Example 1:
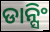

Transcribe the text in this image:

ଡାନ୍ସିଂ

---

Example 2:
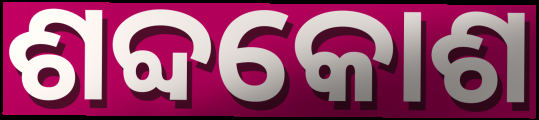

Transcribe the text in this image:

ଶବ୍ଦକୋଶ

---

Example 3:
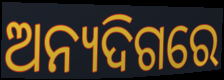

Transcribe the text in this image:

ଅନ୍ୟଦିଗରେ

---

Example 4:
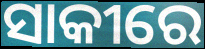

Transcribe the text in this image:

ସାକୀରେ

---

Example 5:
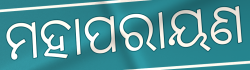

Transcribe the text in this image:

ମହାପରାୟଣ